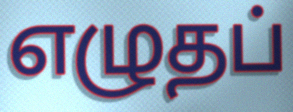
எழுதப்